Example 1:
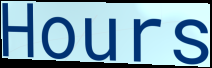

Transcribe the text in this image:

Hours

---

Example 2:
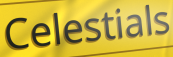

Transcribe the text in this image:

Celestials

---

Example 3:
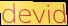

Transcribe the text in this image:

devid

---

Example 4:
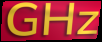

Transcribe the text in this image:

GHz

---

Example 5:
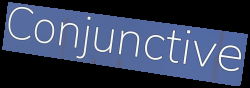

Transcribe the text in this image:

Conjunctive